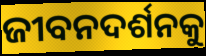
ଜୀବନଦର୍ଶନକୁ